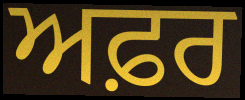
ਅਫ਼ਰ